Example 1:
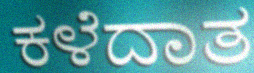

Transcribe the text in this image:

ಕಳೆದಾತ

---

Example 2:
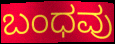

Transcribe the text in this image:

ಬಂಧವು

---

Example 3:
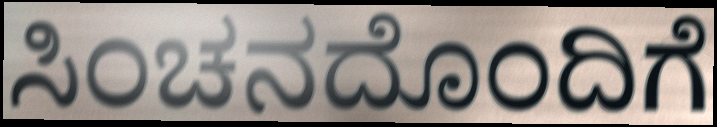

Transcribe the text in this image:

ಸಿಂಚನದೊಂದಿಗೆ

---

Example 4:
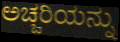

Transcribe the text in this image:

ಅಚ್ಚರಿಯನ್ನು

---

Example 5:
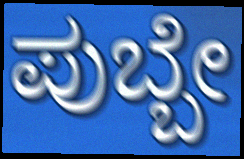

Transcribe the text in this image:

ಪುಬ್ಬೇ